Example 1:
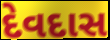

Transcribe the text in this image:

દેવદાસ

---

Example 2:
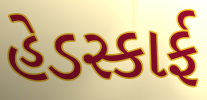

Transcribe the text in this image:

હેડસ્કાર્ફ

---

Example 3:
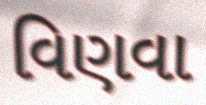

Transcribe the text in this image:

વિણવા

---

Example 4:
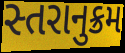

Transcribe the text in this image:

સ્તરાનુક્રમ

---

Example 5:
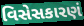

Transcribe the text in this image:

વિસેસકારણં